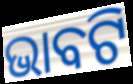
ଭାବଟି